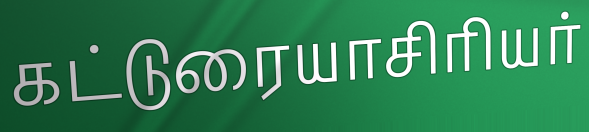
கட்டுரையாசிரியர்